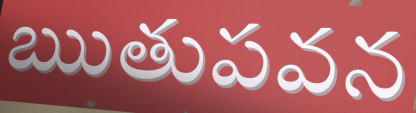
ఋతుపవన